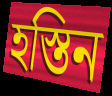
হস্তিন